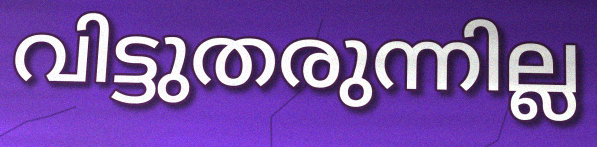
വിട്ടുതരുന്നില്ല